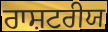
ਰਾਸ਼ਟਰੀਯ